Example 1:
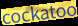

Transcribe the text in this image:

cockatoo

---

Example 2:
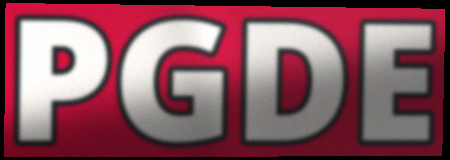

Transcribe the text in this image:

PGDE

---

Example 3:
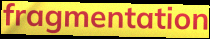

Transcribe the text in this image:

fragmentation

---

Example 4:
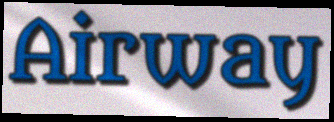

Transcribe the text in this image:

Airway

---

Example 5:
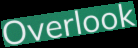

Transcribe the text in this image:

Overlook